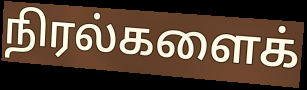
நிரல்களைக்